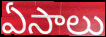
ఏసాలు